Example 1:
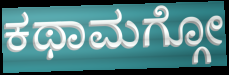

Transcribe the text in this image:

ಕಥಾಮಗ್ಗೋ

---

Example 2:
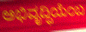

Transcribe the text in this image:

ಅಭಿವೃದ್ಧಿಯೆಂಬ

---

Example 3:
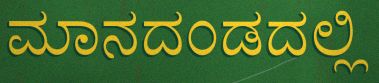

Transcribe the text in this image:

ಮಾನದಂಡದಲ್ಲಿ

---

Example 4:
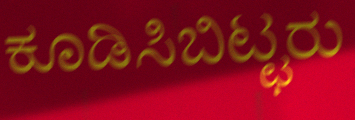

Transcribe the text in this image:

ಕೂಡಿಸಿಬಿಟ್ಟರು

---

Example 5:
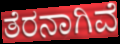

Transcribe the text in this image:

ತೆರನಾಗಿವೆ